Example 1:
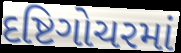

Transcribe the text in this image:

દષ્ટિગોચરમાં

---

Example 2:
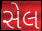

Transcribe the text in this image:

સેલ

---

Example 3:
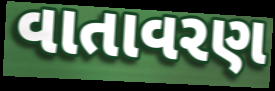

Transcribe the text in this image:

વાતાવરણ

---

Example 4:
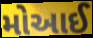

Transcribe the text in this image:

મોઆઈ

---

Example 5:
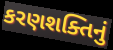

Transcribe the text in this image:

કરણશક્તિનું